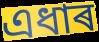
এধাৰ